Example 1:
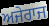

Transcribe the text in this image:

ਅਜੇਰਾਜ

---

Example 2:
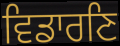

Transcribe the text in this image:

ਵਿਡਾਰਣਿ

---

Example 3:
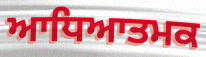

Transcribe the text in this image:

ਆਧਿਆਤਮਕ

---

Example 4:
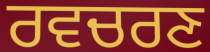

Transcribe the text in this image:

ਰਵਚਰਣ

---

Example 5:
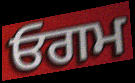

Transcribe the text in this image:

ਓਗਮ